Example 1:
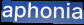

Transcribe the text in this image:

aphonia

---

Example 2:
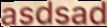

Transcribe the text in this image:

asdsad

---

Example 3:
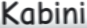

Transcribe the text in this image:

Kabini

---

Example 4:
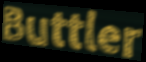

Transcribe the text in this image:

Buttler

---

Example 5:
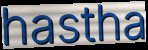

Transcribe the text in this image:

hastha